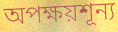
অপক্ষয়শূন্য